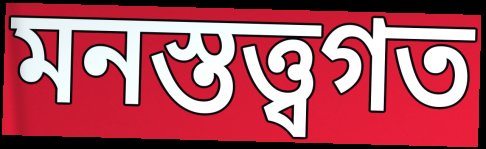
মনস্তত্ত্বগত